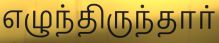
எழுந்திருந்தார்